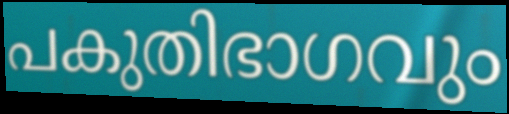
പകുതിഭാഗവും